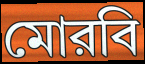
মোরবি